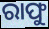
ରାଫୁ